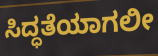
ಸಿದ್ಧತೆಯಾಗಲೀ